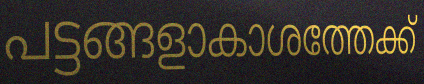
പട്ടങ്ങളാകാശത്തേക്ക്